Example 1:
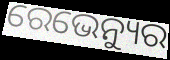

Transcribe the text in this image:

ରେଭେନ୍ୟୁର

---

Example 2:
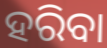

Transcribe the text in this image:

ହରିବା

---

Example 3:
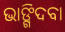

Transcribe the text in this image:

ଭାଙ୍ଗିଦବା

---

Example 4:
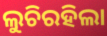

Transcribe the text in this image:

ଲୁଚିରହିଲା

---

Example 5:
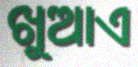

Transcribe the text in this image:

ଖୁଆଏ